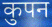
कुपन